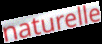
naturelle